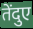
तेंदुए